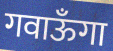
गवाऊँगा